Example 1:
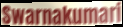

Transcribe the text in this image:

Swarnakumari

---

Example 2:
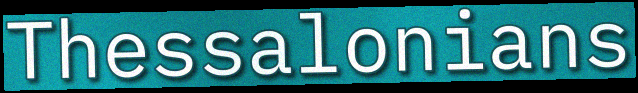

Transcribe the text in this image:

Thessalonians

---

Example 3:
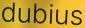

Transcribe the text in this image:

dubius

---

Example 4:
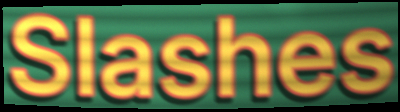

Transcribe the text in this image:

Slashes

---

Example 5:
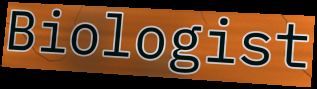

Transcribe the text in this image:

Biologist